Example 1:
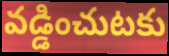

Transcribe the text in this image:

వడ్డించుటకు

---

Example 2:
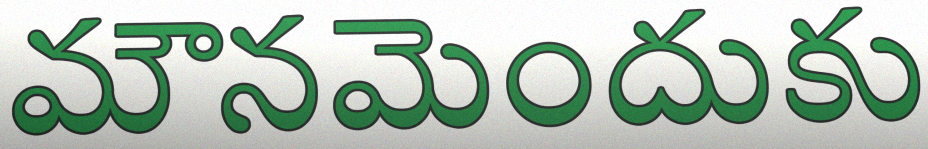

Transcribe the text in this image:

మౌనమెందుకు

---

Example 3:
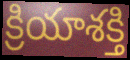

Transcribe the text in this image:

క్రియాశక్తి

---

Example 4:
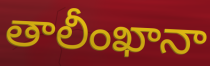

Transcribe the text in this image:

తాలీంఖానా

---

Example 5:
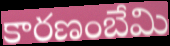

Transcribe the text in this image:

కారణంబేమి